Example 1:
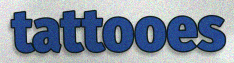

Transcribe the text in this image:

tattooes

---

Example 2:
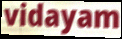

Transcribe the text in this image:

vidayam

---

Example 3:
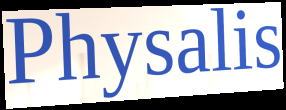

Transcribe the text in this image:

Physalis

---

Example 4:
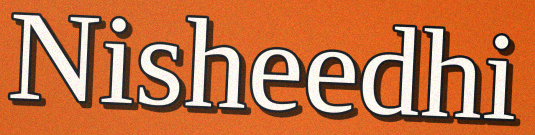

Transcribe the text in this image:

Nisheedhi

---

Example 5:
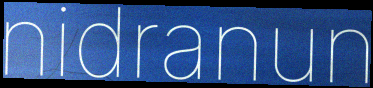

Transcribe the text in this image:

nidranun